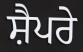
ਸ਼ੈਪਰੇ